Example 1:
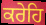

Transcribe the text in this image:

ਕਰੇਹਿ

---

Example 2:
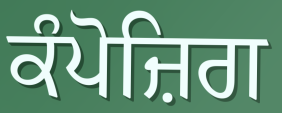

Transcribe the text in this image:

ਕੰਪੋਜ਼ਿਗ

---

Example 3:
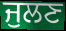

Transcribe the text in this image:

ਜੁਲਣ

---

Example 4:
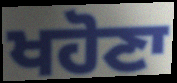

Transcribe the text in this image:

ਖਹੋਣਾ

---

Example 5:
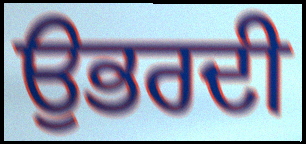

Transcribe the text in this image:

ਉਭਰਦੀ